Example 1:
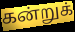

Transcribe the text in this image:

கன்றுக்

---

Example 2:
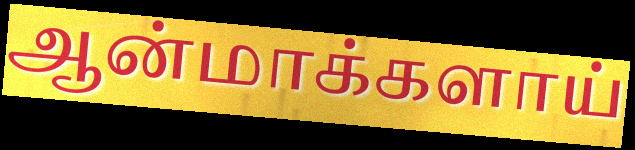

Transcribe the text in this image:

ஆன்மாக்களாய்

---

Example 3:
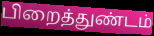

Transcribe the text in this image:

பிறைத்துண்டம்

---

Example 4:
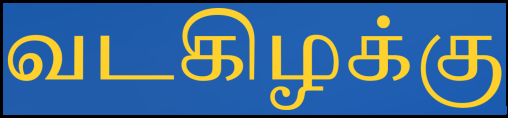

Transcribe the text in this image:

வடகிழக்கு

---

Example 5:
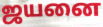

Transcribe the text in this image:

ஜயனை